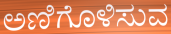
ಅಣಿಗೊಳಿಸುವ